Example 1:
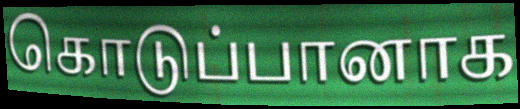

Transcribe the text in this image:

கொடுப்பானாக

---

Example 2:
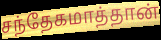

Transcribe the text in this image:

சந்தேகமாத்தான்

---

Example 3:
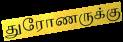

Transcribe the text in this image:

துரோணருக்கு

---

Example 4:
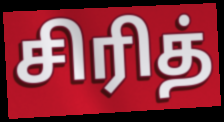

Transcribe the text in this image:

சிரித்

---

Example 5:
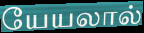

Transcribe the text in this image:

யேயலால்